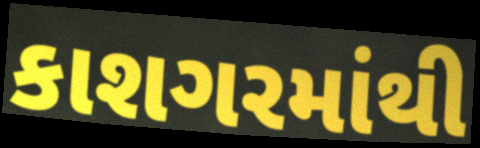
કાશગરમાંથી